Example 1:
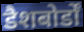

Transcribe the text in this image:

डैशबोर्डों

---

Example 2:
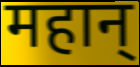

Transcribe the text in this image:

महान्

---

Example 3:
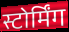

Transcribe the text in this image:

स्टोर्मिंग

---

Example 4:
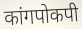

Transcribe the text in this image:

कांगपोकपी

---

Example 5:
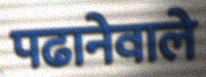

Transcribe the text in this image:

पढानेवाले